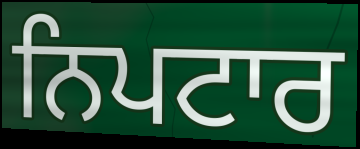
ਨਿਪਟਾਰ